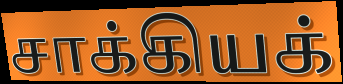
சாக்கியக்